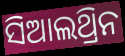
ସିଆଲଥ୍ରିନ